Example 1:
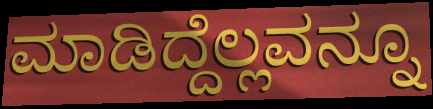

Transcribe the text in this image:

ಮಾಡಿದ್ದೆಲ್ಲವನ್ನೂ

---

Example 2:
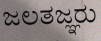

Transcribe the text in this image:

ಜಲತಜ್ಞರು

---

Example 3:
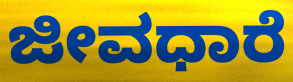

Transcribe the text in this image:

ಜೀವಧಾರೆ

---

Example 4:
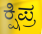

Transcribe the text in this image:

ಕ್ಷಿಪ್ರ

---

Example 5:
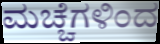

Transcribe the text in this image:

ಮಚ್ಚೆಗಳಿಂದ